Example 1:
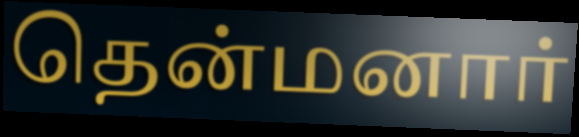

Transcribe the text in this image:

தென்மனார்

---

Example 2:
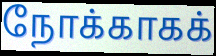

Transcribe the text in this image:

நோக்காகக்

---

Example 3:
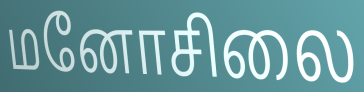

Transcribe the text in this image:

மனோசிலை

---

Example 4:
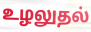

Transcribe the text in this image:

உழலுதல்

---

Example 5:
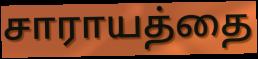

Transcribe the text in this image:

சாராயத்தை